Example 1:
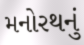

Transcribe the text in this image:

મનોરથનું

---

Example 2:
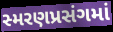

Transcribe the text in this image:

સ્મરણપ્રસંગમાં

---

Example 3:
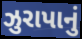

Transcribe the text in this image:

ઝુરાપાનું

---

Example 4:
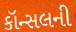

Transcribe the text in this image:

કૉન્સલની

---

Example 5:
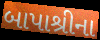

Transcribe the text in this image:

બાપાશ્રીના